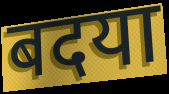
बदया